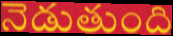
నెడుతుంది